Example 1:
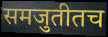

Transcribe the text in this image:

समजुतीतच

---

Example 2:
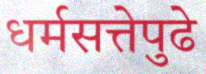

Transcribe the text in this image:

धर्मसत्तेपुढे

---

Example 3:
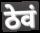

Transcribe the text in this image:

ठेवं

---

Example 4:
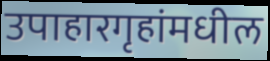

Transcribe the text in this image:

उपाहारगृहांमधील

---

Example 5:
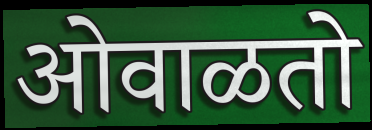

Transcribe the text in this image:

ओवाळतो